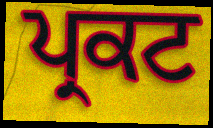
ਪ੍ਰਕਟ